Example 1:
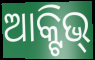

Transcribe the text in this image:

ଆକ୍ଟିଭ୍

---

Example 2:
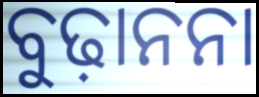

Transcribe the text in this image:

ବୁଢ଼ାନନା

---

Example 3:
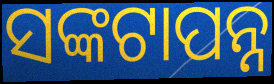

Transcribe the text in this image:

ସଙ୍କଟାପନ୍ନ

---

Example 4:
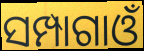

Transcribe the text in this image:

ସମ୍ପାଗାଓଁ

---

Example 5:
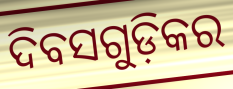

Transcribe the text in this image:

ଦିବସଗୁଡ଼ିକର